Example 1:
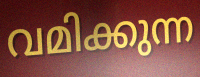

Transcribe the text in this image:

വമിക്കുന്ന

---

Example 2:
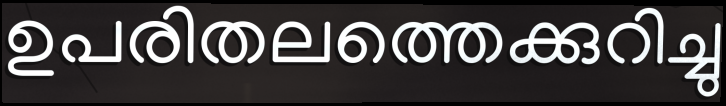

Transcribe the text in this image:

ഉപരിതലത്തെക്കുറിച്ചു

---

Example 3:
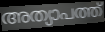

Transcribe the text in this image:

അത്യാപത്ത്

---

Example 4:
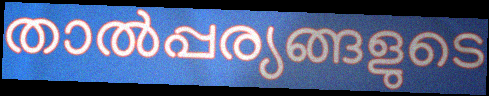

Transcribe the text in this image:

താൽപ്പര്യങ്ങളുടെ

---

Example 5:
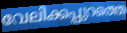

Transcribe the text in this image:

വേലിക്കപ്പുറത്തെ